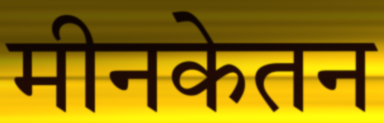
मीनकेतन